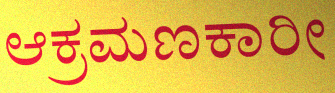
ಆಕ್ರಮಣಕಾರೀ